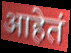
आहेतं